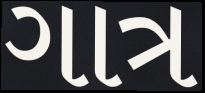
ગાત્ર